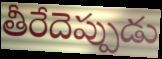
తీరేదెప్పుడు